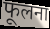
फूलना